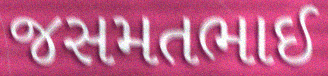
જસમતભાઈ